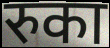
रुका